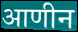
आणीन